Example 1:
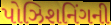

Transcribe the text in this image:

પોઝિશનિંગની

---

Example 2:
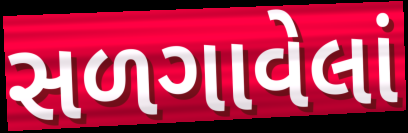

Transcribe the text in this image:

સળગાવેલાં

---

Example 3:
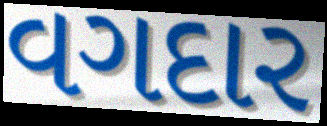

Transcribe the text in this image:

વગદાર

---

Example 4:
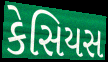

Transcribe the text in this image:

કેસિયસ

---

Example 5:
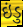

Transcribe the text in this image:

ઇંડુ